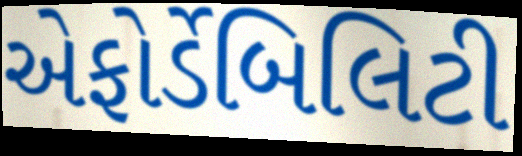
એફોર્ડેબિલિટી